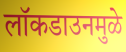
लॉकडाउनमुळे